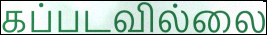
கப்படவில்லை